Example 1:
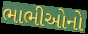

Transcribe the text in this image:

ભાભીઓનો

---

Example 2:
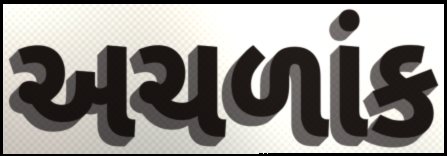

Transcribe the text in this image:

અચળાંક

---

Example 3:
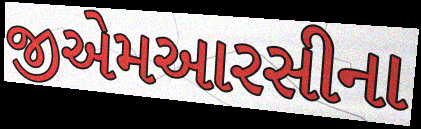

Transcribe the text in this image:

જીએમઆરસીના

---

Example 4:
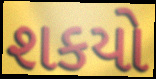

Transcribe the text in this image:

શકયો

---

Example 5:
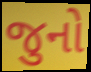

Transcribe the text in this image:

જુનો